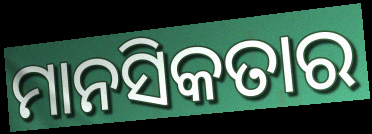
ମାନସିକତାର